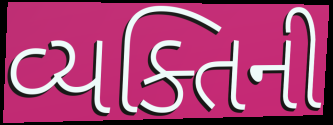
વ્યક્તિની